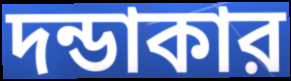
দন্ডাকার